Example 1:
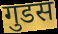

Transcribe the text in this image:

गुडस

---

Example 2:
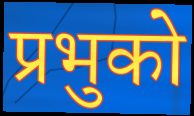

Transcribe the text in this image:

प्रभुको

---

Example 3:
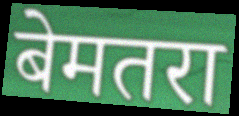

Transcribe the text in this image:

बेमतरा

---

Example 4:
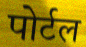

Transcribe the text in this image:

पोर्टल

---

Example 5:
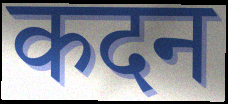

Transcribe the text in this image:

कदन